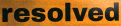
resolved